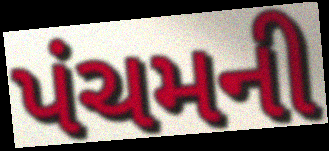
પંચમની